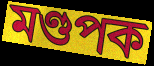
মণ্ডপক